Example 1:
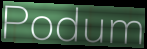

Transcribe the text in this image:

Podum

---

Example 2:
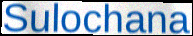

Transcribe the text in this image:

Sulochana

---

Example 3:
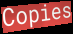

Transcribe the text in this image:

Copies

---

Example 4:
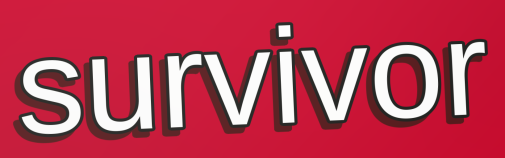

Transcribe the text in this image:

survivor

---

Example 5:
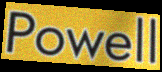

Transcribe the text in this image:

Powell